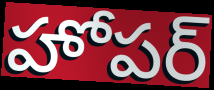
హోపర్